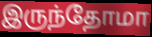
இருந்தோமா